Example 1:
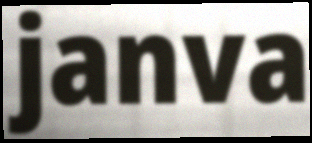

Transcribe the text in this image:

janva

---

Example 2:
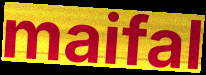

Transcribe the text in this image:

maifal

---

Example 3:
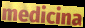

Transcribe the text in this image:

medicina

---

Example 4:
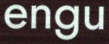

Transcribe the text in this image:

engu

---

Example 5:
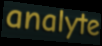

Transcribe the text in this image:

analyte